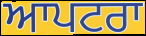
ਆਪਟਰਾ